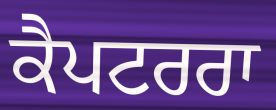
ਕੈਪਟਰਰਾ